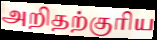
அறிதற்குரிய